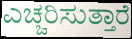
ಎಚ್ಚರಿಸುತ್ತಾರೆ